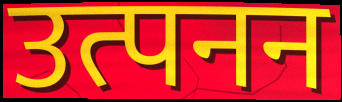
उत्पनन